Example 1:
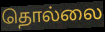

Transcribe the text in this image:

தொல்லை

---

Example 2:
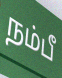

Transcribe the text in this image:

நம்பீ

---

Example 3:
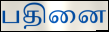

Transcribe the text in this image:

பதினை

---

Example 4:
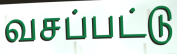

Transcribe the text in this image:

வசப்பட்டு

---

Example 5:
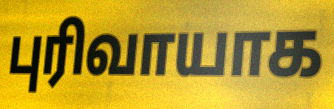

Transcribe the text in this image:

புரிவாயாக